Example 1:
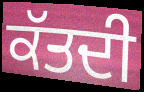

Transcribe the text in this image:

ਕੱਤਦੀ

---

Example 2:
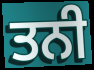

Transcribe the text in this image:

ਤਨੀ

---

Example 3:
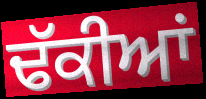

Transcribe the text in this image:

ਢੱਕੀਆਂ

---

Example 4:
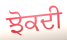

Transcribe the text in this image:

ਝੋਕਦੀ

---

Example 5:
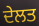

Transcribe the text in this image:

ਦੇਲਤ